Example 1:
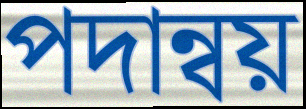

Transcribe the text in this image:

পদান্বয়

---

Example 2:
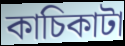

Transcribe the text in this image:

কাচিকাটা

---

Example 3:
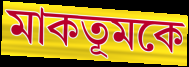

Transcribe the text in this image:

মাকতূমকে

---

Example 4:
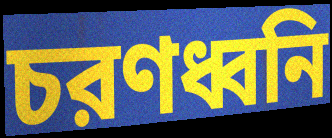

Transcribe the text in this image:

চরণধ্বনি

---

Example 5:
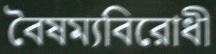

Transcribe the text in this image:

বৈষম্যবিরোধী